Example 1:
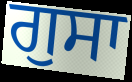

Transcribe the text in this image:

ਗੁਸਾ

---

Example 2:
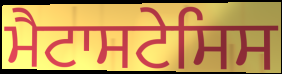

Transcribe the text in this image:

ਮੈਟਾਸਟੇਸਿਸ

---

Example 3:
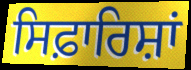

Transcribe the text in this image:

ਸਿਫ਼ਾਰਿਸ਼ਾਂ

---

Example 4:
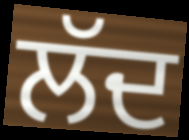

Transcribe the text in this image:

ਲੱਦ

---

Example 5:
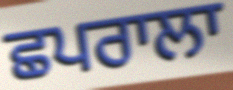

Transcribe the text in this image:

ਛਪਰਾਲਾ